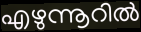
എഴുന്നൂറിൽ